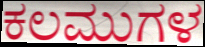
ಕಲಮುಗಳ